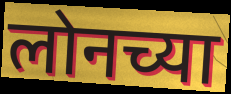
लोनच्या